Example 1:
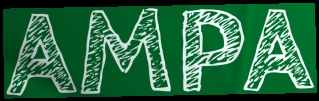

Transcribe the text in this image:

AMPA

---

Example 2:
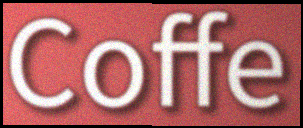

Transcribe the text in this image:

Coffe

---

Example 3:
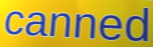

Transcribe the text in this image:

canned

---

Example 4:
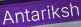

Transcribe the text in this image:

Antariksh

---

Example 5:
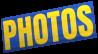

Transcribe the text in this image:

PHOTOS